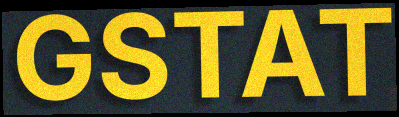
GSTAT